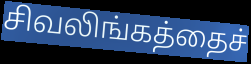
சிவலிங்கத்தைச்